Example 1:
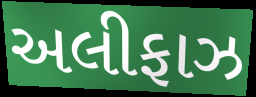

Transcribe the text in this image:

અલીફાઝ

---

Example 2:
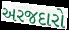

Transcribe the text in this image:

અરજદારો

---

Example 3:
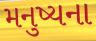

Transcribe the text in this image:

મનુષ્યના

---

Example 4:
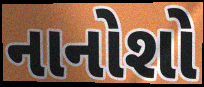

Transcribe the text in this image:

નાનોશો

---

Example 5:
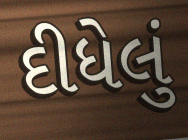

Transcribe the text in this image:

દીધેલું